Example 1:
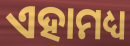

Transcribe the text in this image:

ଏହାମଧ୍ୟ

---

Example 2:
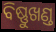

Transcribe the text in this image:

ବିଷ୍ଣୁଖଣ୍ଡ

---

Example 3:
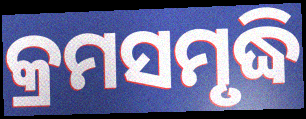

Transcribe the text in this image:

କ୍ରମସମୃଦ୍ଧି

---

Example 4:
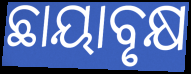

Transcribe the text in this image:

ଛାୟାବୃକ୍ଷ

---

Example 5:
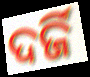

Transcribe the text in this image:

ଦର୍ଜି